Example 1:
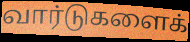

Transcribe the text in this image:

வார்டுகளைக்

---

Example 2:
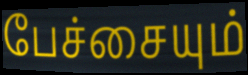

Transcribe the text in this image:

பேச்சையும்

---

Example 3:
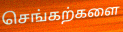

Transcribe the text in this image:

செங்கற்களை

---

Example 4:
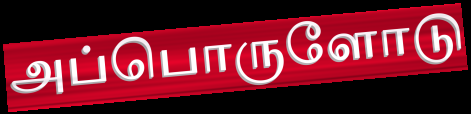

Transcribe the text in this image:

அப்பொருளோடு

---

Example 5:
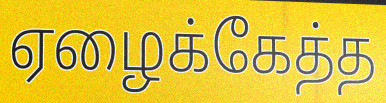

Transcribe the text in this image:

ஏழைக்கேத்த